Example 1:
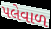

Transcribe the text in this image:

પલેવાળ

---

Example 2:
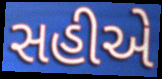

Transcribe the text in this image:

સહીએ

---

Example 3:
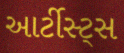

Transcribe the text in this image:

આર્ટીસ્ટ્સ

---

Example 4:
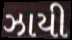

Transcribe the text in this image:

ઝાયી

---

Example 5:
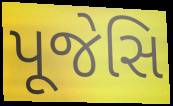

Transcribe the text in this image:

પૂજેસિ